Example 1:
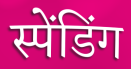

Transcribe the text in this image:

स्पेंडिंग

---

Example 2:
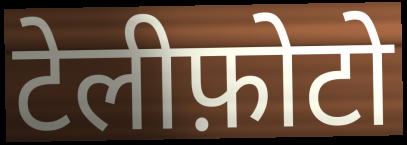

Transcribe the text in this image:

टेलीफ़ोटो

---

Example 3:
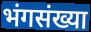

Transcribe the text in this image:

भंगसंख्या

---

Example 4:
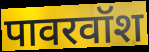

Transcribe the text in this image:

पावरवॉश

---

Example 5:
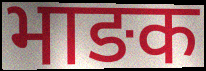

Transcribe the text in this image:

भाङक